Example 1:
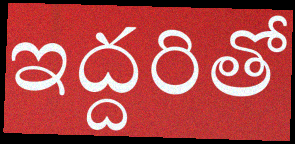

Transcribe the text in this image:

ఇద్దరితో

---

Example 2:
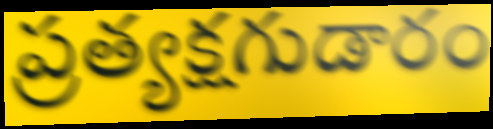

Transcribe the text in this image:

ప్రత్యక్షగుడారం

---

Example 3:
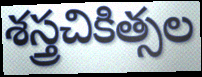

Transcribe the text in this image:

శస్త్రచికిత్సల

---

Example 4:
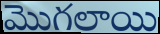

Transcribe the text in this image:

మొగలాయి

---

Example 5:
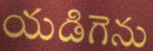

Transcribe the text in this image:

యడిగెను